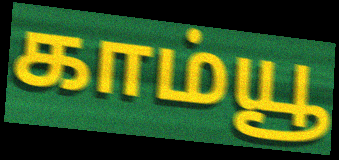
காம்யூ